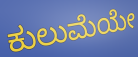
ಕುಲುಮೆಯೇ